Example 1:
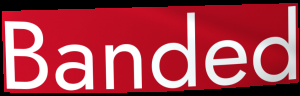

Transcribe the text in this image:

Banded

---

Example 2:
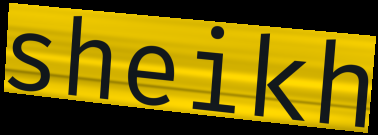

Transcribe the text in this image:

sheikh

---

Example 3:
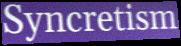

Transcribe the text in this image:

Syncretism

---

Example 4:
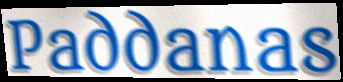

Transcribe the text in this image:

Paddanas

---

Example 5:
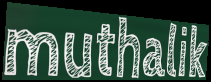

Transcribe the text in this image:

muthalik